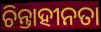
ଚିନ୍ତାହୀନତା